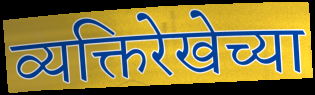
व्यक्तिरेखेच्या